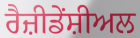
ਰੈਜ਼ੀਡੇਂਸ਼ੀਅਲ